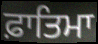
ਫ਼ਾਤਿਮਾ